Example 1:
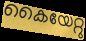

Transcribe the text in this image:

കൈയേറ്റു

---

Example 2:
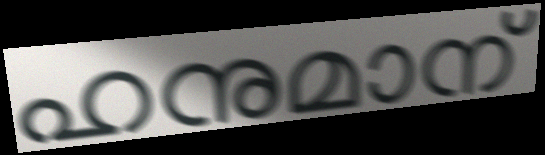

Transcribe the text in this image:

ഹനുമാന്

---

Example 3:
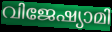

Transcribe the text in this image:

വിജേഷ്യാമി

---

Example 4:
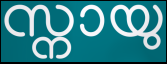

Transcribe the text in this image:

സ്നായു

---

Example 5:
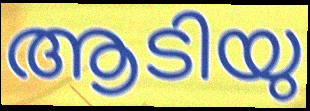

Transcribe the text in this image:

ആടിയു